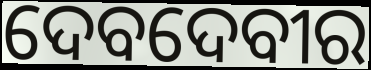
ଦେବଦେବୀର